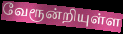
வேரூன்றியுள்ள